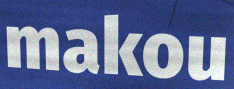
makou